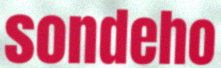
sondeho